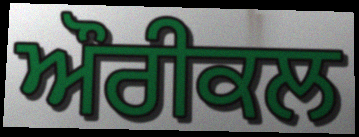
ਔਰੀਕਲ